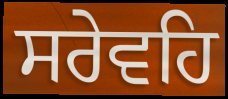
ਸਰੇਵਹਿ